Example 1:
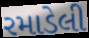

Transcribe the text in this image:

રમાડેલી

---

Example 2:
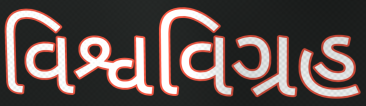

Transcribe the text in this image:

વિશ્વવિગ્રહ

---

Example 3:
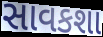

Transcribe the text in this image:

સાવકશા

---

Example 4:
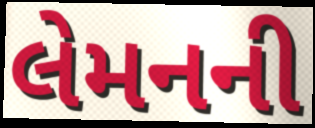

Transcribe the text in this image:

લેમનની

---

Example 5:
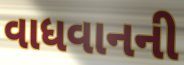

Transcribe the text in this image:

વાધવાનની